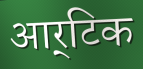
आर्टिक